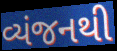
વ્યંજનથી